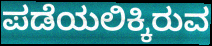
ಪಡೆಯಲಿಕ್ಕಿರುವ